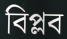
বিপ্লব